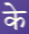
के